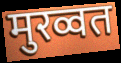
मुरव्वत